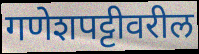
गणेशपट्टीवरील